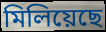
মিলিয়েছে